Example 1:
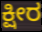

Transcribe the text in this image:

ಕ್ಷೀರ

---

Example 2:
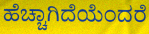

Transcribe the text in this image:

ಹೆಚ್ಚಾಗಿದೆಯೆಂದರೆ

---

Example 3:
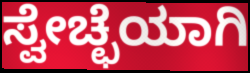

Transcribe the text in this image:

ಸ್ವೇಚ್ಛೆಯಾಗಿ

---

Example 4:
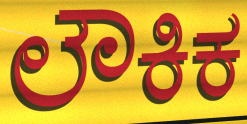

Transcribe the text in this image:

ಲೌಕಿಕ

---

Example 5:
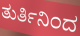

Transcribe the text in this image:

ತುರ್ತಿನಿಂದ